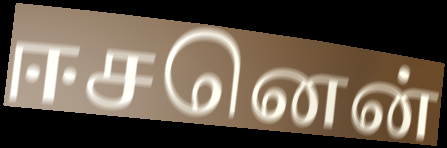
ஈசனென்